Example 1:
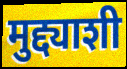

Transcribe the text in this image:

मुद्द्याशी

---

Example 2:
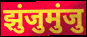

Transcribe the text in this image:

झुंजुमुंजु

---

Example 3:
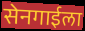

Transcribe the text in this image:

सेनगाईला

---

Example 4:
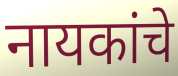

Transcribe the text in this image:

नायकांचे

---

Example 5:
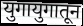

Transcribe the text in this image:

युगायुगातून